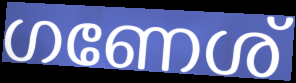
ഗണേശ്